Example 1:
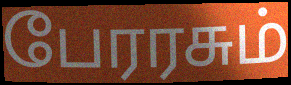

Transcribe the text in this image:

பேரரசும்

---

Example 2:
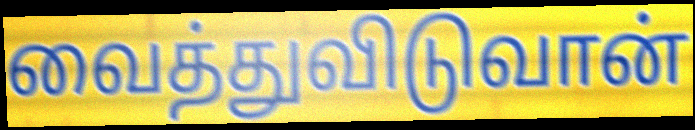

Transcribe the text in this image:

வைத்துவிடுவான்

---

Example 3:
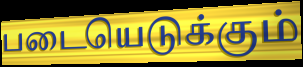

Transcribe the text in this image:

படையெடுக்கும்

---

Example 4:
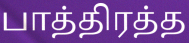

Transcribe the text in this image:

பாத்திரத்த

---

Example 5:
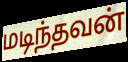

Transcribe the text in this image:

மடிந்தவன்